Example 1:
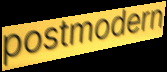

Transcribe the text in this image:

postmodern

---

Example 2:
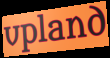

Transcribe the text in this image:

upland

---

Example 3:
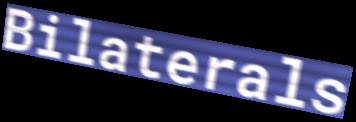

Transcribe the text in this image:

Bilaterals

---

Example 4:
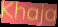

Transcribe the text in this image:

Khaja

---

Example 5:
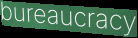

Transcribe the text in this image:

bureaucracy